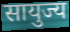
सायुज्य